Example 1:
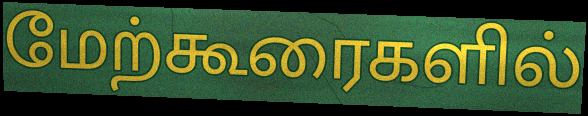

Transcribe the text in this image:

மேற்கூரைகளில்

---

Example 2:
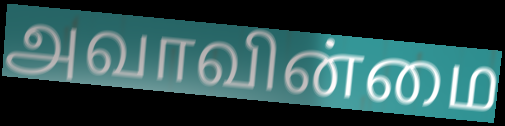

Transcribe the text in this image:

அவாவின்மை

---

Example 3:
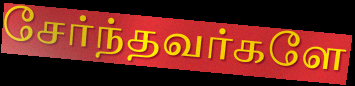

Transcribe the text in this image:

சேர்ந்தவர்களே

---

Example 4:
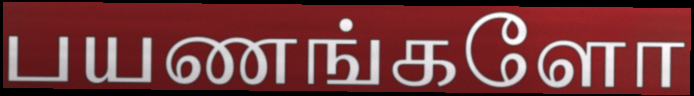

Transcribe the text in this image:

பயணங்களோ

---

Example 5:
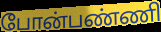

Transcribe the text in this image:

போன்பண்ணி